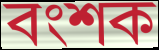
বংশক